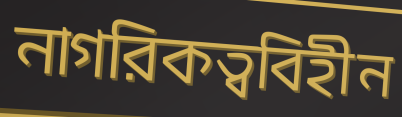
নাগরিকত্ববিহীন